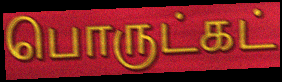
பொருட்கட்